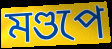
মণ্ডপে